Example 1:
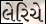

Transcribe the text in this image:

લેરિચે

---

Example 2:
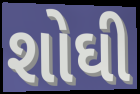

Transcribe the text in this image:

શોઘી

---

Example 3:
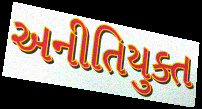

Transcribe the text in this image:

અનીતિયુક્ત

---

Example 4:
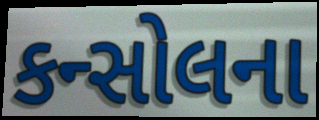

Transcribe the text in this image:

કન્સોલના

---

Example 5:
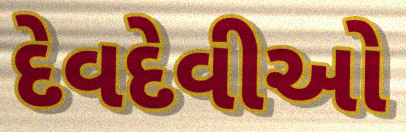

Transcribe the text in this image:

દેવદેવીઓ